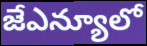
జేఎన్యూలో